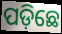
ପଡ଼ିଛେ